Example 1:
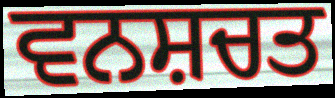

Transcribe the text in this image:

ਵਨਸ਼ਚਤ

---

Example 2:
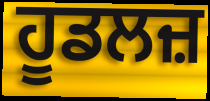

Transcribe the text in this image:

ਹੂਡਲਜ਼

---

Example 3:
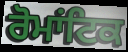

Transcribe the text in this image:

ਰੋਮਾਂਟਿਕ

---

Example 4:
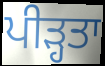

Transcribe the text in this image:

ਪੀੜ੍ਹਤਾ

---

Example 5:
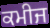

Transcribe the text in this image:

ਕਮੀਜ